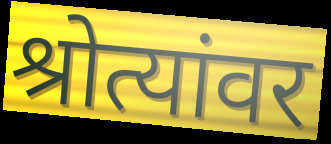
श्रोत्यांवर